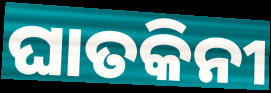
ଘାତକିନୀ